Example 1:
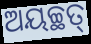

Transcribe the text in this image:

ଅୟଚ୍ଛତ୍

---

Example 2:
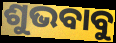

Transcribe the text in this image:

ଶୁଭବାବୁ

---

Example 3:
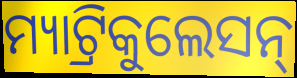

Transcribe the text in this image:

ମ୍ୟାଟ୍ରିକୁଲେସନ୍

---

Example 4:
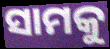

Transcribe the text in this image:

ସାମକୁ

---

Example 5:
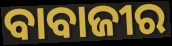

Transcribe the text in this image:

ବାବାଜୀର